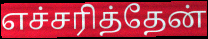
எச்சரித்தேன்